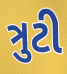
ત્રુટી